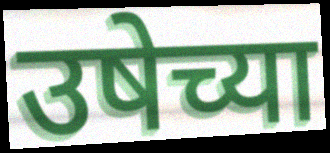
उषेच्या